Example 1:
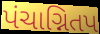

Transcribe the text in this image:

પંચાગ્નિતપ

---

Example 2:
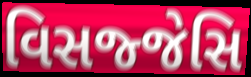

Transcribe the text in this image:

વિસજ્જેસિ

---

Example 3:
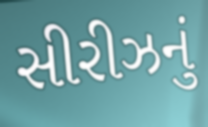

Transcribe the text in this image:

સીરીઝનું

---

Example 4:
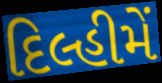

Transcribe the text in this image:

દિલ્હીમેં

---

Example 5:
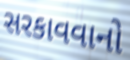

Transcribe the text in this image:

સરકાવવાનો